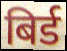
बिर्ड